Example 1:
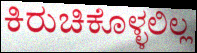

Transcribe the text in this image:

ಕಿರುಚಿಕೊಳ್ಳಲಿಲ್ಲ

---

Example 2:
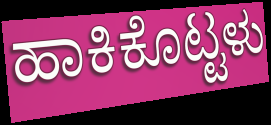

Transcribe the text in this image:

ಹಾಕಿಕೊಟ್ಟಳು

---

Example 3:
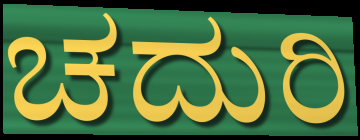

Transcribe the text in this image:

ಚದುರಿ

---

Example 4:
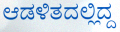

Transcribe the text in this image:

ಆಡಳಿತದಲ್ಲಿದ್ದ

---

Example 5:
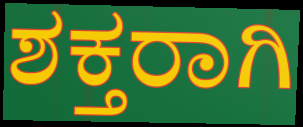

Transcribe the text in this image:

ಶಕ್ತರಾಗಿ